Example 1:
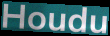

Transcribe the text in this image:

Houdu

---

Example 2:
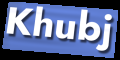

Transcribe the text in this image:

Khubj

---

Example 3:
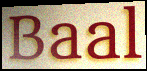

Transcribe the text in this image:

Baal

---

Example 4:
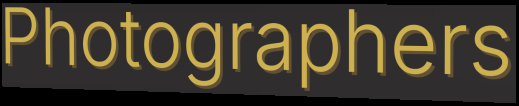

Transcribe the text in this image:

Photographers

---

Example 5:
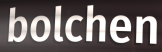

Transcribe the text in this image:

bolchen